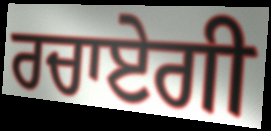
ਰਚਾਏਗੀ